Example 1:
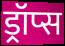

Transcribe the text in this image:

ड्रॉप्‍स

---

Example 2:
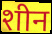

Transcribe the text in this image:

शीन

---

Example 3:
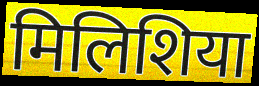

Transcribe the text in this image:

मिलिशिया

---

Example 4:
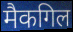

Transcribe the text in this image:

मैकगिल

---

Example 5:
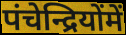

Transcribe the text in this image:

पंचेन्द्रियोंमें